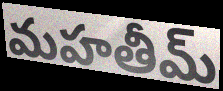
మహతీమ్